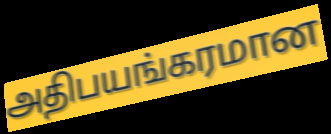
அதிபயங்கரமான